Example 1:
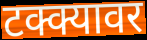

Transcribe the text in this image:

टक्क्यावर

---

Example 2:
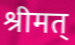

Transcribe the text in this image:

श्रीमत्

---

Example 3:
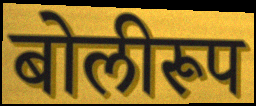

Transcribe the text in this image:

बोलीरूप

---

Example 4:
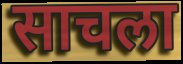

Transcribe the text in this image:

साचला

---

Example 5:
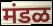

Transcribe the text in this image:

मंडळ